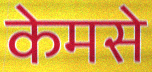
केमसे